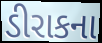
ડીરાકના